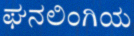
ಘನಲಿಂಗಿಯ